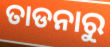
ତାଡନାରୁ